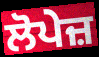
ਲੋਪੇਜ਼